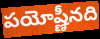
పయోష్ణీనది